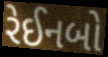
રેઈનબો